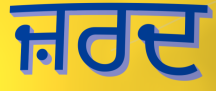
ਜ਼ਰਦ